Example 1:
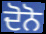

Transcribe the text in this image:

ਦੋਨੋ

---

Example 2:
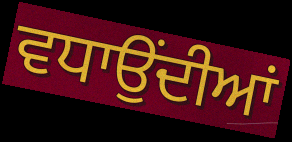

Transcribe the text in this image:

ਵਧਾਉਂਦੀਆਂ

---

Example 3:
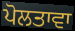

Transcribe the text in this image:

ਪੋਲਤਾਵਾ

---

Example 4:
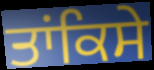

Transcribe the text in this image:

ਤਾਂਕਿਸੇ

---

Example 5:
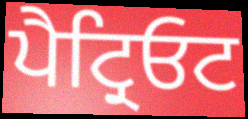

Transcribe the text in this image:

ਪੈਟ੍ਰਿਓਟ